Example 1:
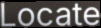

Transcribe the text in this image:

Locate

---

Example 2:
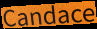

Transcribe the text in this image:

Candace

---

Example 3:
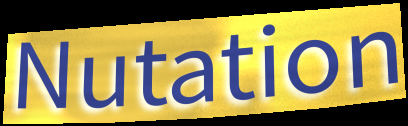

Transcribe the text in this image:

Nutation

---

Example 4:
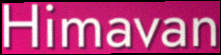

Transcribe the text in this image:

Himavan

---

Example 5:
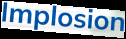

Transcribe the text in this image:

Implosion